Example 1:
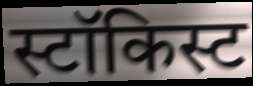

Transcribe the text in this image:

स्टॉकिस्ट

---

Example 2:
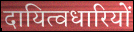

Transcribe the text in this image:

दायित्वधारियों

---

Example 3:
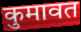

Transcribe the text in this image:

कुमावत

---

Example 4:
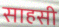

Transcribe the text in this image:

साहसी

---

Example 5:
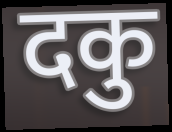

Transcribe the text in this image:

दकु